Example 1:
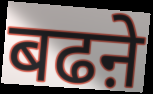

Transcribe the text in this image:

बढऩे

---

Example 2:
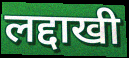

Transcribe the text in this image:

लद्दाखी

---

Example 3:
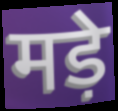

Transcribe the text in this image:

मड़े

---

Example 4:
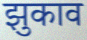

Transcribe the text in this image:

झुकाव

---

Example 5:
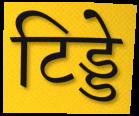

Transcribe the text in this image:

टिड्डे